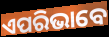
ଏପରିଭାବେ